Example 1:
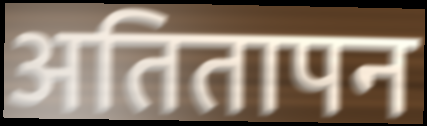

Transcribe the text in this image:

अतितापन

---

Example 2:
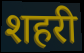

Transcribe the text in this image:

शहरी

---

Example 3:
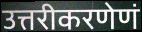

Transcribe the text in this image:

उत्तरीकरणेणं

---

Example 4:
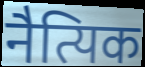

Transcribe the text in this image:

नैत्यिक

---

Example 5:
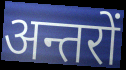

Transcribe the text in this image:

अन्तरों